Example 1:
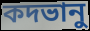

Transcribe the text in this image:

কদভানু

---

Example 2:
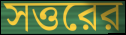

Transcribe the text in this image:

সত্তরের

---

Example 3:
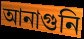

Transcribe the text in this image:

আনাগুনি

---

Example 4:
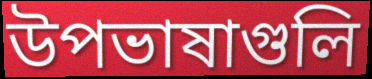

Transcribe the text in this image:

উপভাষাগুলি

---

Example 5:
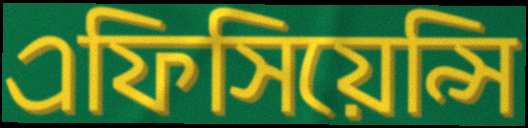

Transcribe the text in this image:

এফিসিয়েন্সি